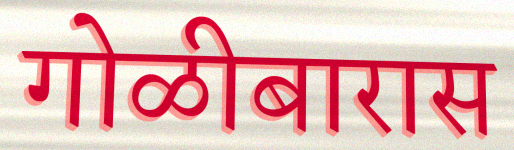
गोळीबारास